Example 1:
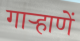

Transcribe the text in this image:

गार्‍हाणें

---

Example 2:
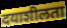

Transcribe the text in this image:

दयाशीलता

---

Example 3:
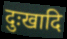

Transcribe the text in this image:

दुःखादि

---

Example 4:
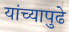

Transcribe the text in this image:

यांच्यापुढे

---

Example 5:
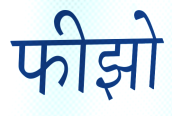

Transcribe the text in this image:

फीझो